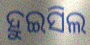
ହୁଇସିଲ